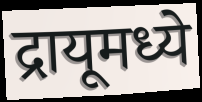
द्रायूमध्ये